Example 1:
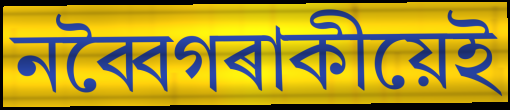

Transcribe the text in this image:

নব্বৈগৰাকীয়েই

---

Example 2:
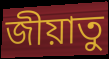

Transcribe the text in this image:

জীয়াতু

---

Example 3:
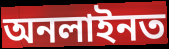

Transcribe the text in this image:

অনলাইনত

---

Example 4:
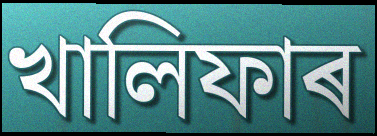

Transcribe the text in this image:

খালিফাৰ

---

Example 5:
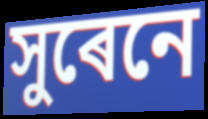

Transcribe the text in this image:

সুৰেনে